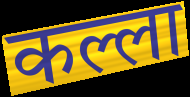
कल्ला